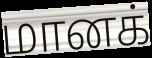
மானக்